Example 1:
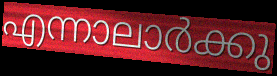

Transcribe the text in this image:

എന്നാലാർക്കു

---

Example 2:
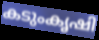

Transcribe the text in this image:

കടുംകൃഷി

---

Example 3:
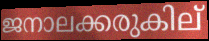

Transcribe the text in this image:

ജനാലക്കരുകില്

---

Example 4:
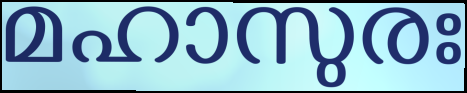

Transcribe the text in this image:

മഹാസുരഃ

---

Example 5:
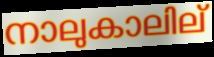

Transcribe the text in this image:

നാലുകാലില്